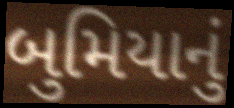
બુમિયાનું